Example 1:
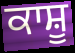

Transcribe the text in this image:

ਕਾਸ਼ੂ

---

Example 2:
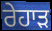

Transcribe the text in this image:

ਰੇਹਾੜ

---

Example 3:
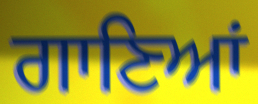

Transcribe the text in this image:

ਗਾਣਿਆਂ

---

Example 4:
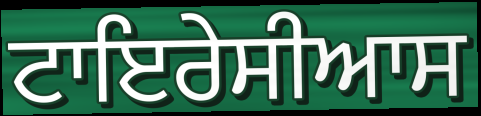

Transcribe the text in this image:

ਟਾਇਰੇਸੀਆਸ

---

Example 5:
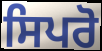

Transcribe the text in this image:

ਸਿਪਰੋ